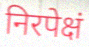
निरपेक्षं